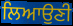
ਲਿਆਉਣੀ